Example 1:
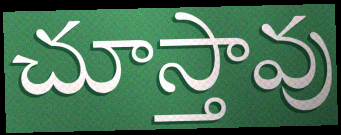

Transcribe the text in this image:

చూస్తావు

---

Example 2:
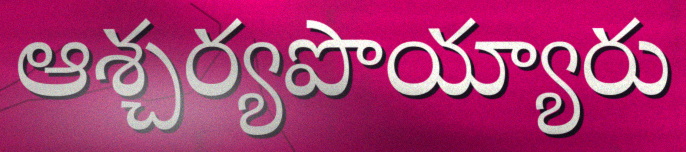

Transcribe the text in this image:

ఆశ్చర్యపొయ్యారు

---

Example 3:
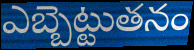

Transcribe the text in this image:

ఎబ్బెట్టుతనం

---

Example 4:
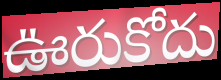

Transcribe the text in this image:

ఊరుకోదు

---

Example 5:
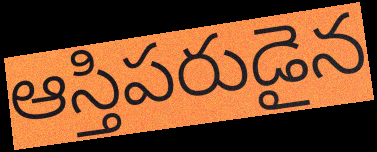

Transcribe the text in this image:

ఆస్తిపరుడైన